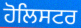
ਹੋਲਿਸਟਰ